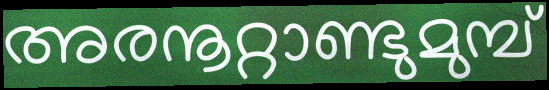
അരനൂറ്റാണ്ടുമുമ്പ്